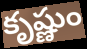
కృష్ణుం